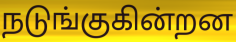
நடுங்குகின்றன